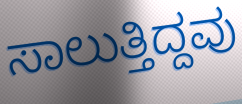
ಸಾಲುತ್ತಿದ್ದವು